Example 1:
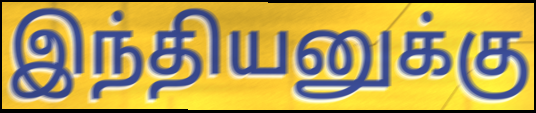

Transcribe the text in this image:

இந்தியனுக்கு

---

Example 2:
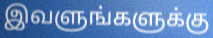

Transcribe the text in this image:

இவளுங்களுக்கு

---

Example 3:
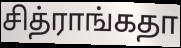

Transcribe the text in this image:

சித்ராங்கதா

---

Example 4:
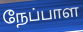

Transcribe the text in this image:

நேப்பாள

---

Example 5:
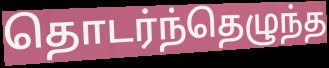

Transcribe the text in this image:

தொடர்ந்தெழுந்த